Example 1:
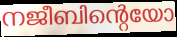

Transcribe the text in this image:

നജീബിന്റെയോ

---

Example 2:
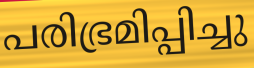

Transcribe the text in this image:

പരിഭ്രമിപ്പിച്ചു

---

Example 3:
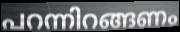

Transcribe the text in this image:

പറന്നിറങ്ങണം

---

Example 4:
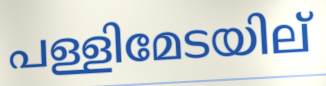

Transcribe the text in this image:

പള്ളിമേടയില്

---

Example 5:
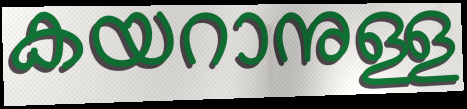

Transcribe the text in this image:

കയറാനുള്ള